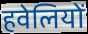
हवेलियों